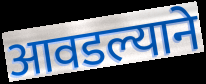
आवडल्याने